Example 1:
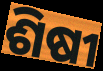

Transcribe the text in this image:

ଶିଷୀ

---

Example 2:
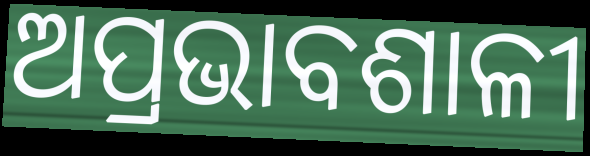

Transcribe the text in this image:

ଅପ୍ରଭାବଶାଳୀ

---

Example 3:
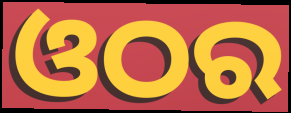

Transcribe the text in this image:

ଓଠର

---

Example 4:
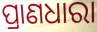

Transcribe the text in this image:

ପ୍ରାଣଧାରା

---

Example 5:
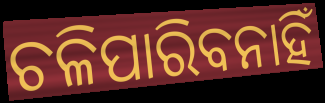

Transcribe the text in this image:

ଚଳିପାରିବନାହିଁ